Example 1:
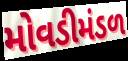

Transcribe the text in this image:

મોવડીમંડળ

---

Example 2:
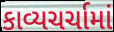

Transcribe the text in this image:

કાવ્યચર્ચામાં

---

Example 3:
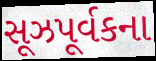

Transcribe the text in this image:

સૂઝપૂર્વકના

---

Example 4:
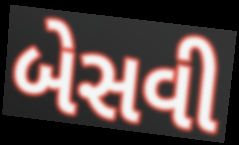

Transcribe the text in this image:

બેસવી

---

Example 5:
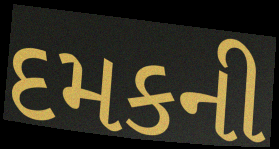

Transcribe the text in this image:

દમકની